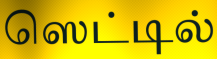
ஸெட்டில்